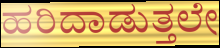
ಹರಿದಾಡುತ್ತಲೇ